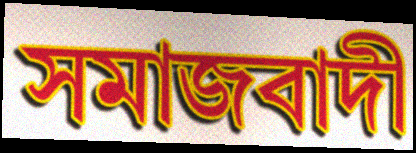
সমাজবাদী